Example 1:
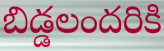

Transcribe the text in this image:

బిడ్డలందరికి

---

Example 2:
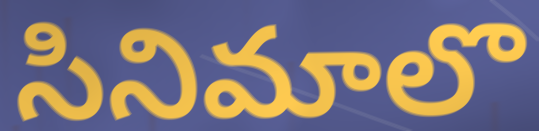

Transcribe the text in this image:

సినిమాలొ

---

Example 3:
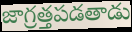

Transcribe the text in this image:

జాగ్రత్తపడతాడు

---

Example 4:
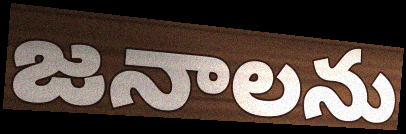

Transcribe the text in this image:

జనాలను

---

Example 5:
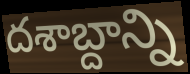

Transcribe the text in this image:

దశాబ్దాన్ని